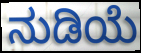
ನುಡಿಯೆ